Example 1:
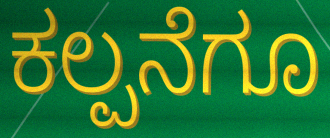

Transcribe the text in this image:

ಕಲ್ಪನೆಗೂ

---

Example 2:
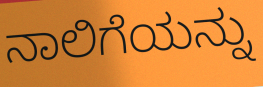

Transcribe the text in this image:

ನಾಲಿಗೆಯನ್ನು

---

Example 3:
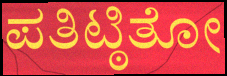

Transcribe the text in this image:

ಪತಿಟ್ಠಿತೋ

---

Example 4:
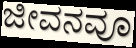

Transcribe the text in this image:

ಜೀವನವೂ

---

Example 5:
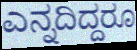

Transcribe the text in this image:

ಎನ್ನದಿದ್ದರೂ